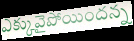
ఎక్కువైపోయిందన్న